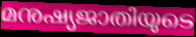
മനുഷ്യജാതിയുടെ